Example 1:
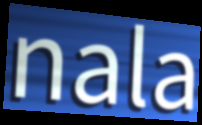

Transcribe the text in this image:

nala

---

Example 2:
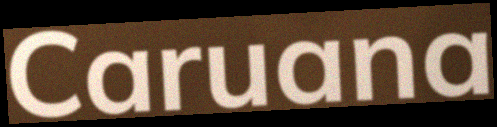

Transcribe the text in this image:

Caruana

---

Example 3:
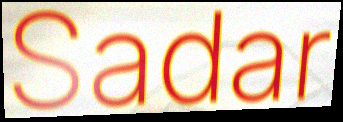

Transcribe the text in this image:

Sadar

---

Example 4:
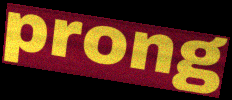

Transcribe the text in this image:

prong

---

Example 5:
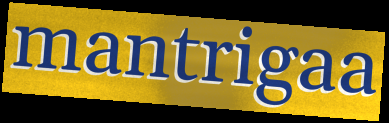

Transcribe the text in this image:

mantrigaa